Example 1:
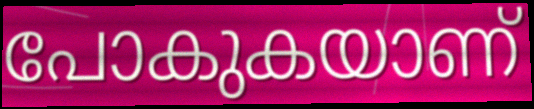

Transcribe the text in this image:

പോകുകയാണ്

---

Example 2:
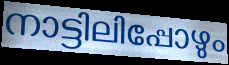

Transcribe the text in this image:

നാട്ടിലിപ്പോഴും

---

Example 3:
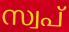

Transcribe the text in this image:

സ്വപ്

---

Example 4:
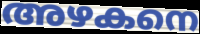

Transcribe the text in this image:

അഴകനെ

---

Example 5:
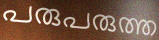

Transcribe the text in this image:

പരുപരുത്ത